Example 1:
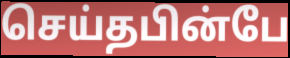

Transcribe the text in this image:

செய்தபின்பே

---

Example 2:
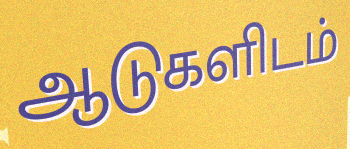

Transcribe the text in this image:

ஆடுகளிடம்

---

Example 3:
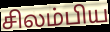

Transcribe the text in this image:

சிலம்பிய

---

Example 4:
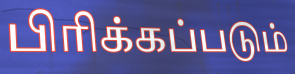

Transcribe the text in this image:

பிரிக்கப்படும்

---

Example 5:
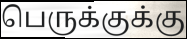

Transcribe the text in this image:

பெருக்குக்கு